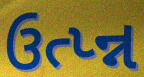
ઉત્પ્ન્ન